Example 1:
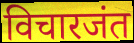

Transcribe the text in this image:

विचारजंत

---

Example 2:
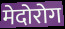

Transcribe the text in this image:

मेदोरोग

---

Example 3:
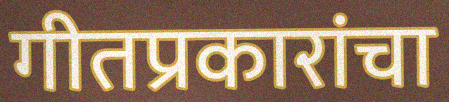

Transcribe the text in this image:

गीतप्रकारांचा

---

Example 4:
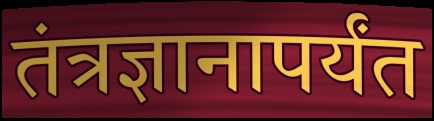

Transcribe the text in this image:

तंत्रज्ञानापर्यंत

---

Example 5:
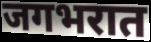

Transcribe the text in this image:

जगभरात